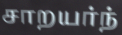
சாறயர்ந்